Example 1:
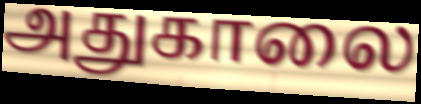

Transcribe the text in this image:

அதுகாலை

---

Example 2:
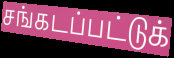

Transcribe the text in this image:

சங்கடப்பட்டுக்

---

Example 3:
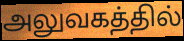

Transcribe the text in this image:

அலுவகத்தில்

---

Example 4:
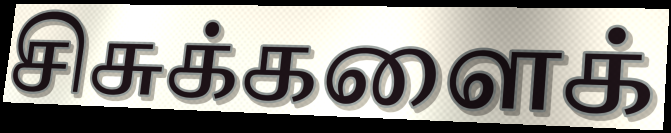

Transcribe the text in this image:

சிசுக்களைக்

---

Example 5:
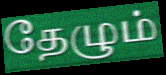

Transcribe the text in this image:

தேழும்